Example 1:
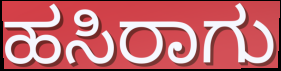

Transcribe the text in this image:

ಹಸಿರಾಗು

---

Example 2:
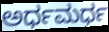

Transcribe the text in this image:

ಅರ್ಧಮರ್ಧ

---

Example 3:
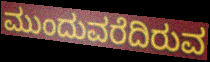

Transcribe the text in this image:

ಮುಂದುವರೆದಿರುವ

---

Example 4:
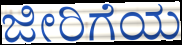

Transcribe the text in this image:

ಜೀರಿಗೆಯ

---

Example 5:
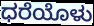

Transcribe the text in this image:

ಧರೆಯೊಳು